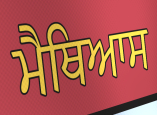
ਮੈਥਿਆਸ